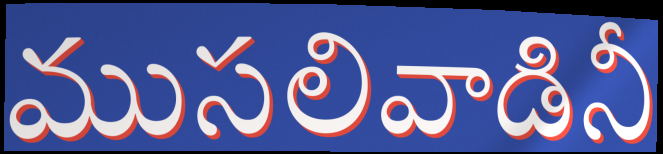
ముసలివాడినీ